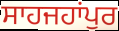
ਸਾਹਜਹਾਂਪੁਰ